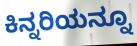
ಕಿನ್ನರಿಯನ್ನೂ